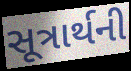
સૂત્રાર્થની